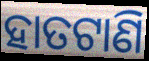
ହାତଟାଣି